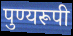
पुण्यरूपी